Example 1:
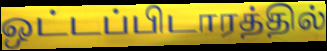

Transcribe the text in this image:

ஒட்டப்பிடாரத்தில்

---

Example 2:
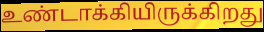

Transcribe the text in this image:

உண்டாக்கியிருக்கிறது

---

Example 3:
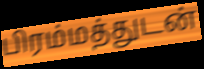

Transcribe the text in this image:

பிரம்மத்துடன்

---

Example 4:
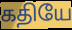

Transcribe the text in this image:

கதியே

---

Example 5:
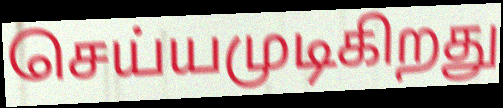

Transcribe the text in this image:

செய்யமுடிகிறது